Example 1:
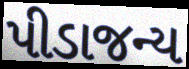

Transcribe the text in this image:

પીડાજન્ય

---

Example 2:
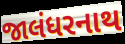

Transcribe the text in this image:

જાલંધરનાથ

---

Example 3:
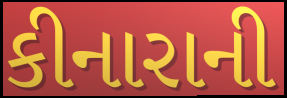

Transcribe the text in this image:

કીનારાની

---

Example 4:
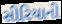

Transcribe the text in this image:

સીરિયાની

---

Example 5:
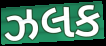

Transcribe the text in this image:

ઝલક